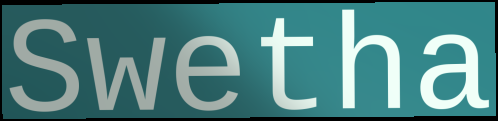
Swetha